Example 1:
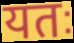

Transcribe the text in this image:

यतः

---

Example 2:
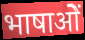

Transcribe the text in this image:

भाषाओें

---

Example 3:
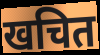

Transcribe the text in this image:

खचित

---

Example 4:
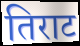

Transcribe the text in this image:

तिराट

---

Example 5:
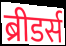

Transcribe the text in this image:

ब्रीडर्स